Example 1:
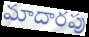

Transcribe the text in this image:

మాదారపు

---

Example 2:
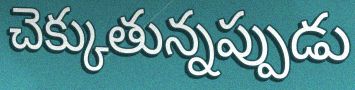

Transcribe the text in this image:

చెక్కుతున్నప్పుడు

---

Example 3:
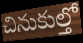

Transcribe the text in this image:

చినుకుల్తో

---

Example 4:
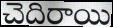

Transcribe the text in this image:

చెదిరాయి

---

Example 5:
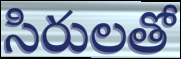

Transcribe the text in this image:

సిరులతో